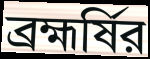
ব্রহ্মর্ষির